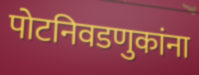
पोटनिवडणुकांना